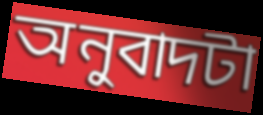
অনুবাদটা